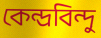
কেন্দ্রবিন্দু